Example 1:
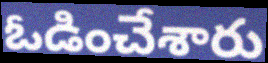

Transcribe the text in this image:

ఓడించేశారు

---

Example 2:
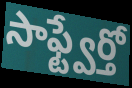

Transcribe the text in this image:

సాఫ్ట్వేర్తో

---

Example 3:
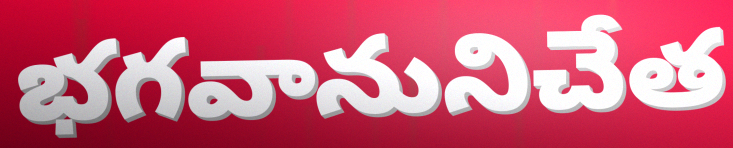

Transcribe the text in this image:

భగవానునిచేత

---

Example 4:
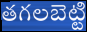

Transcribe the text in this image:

తగలబెట్టి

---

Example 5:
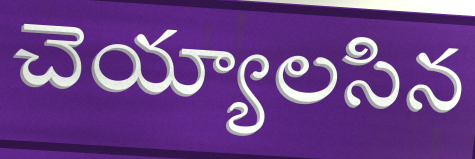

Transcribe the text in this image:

చెయ్యాలసిన